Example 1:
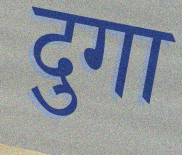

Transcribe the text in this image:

दुगा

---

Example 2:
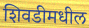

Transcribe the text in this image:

शिवडीमधील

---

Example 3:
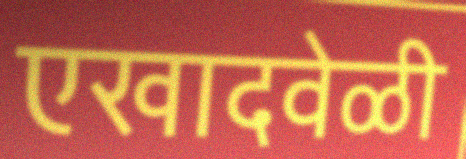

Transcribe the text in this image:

एखादवेळी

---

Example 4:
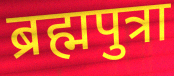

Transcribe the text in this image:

ब्रह्मपुत्रा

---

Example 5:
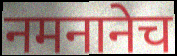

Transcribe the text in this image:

नमनानेच